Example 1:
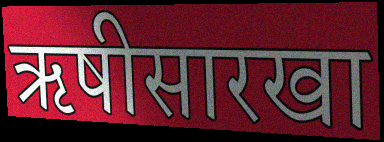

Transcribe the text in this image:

ऋषीसारखा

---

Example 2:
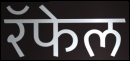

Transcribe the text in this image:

रॅफेल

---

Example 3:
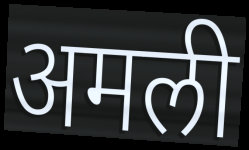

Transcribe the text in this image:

अमली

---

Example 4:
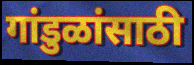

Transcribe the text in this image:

गांडुळांसाठी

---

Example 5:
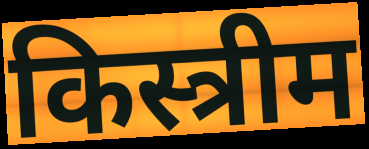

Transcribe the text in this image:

किस्त्रीम